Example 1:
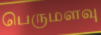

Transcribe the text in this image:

பெருமளவு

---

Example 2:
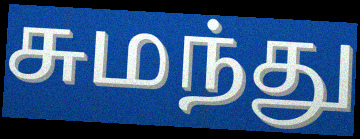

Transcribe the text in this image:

சுமந்து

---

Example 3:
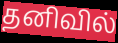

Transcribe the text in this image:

தனிவில்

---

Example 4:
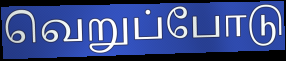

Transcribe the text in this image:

வெறுப்போடு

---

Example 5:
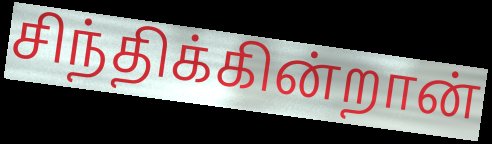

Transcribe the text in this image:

சிந்திக்கின்றான்